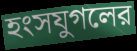
হংসযুগলের